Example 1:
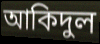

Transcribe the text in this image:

আকিদুল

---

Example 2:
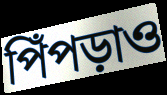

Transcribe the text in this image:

পিঁপড়াও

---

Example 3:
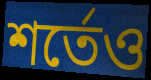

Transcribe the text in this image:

শর্তেও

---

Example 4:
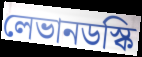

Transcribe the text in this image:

লেভানডস্কি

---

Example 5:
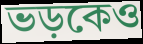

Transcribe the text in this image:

ভড়কেও